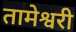
तामेश्वरी